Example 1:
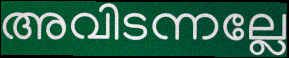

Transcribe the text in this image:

അവിടന്നല്ലേ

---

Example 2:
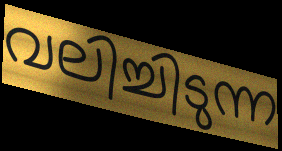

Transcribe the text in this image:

വലിച്ചിടുന്ന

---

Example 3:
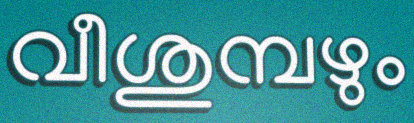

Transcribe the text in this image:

വീശുമ്പഴും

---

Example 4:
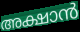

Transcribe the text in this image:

അക്ഷാൻ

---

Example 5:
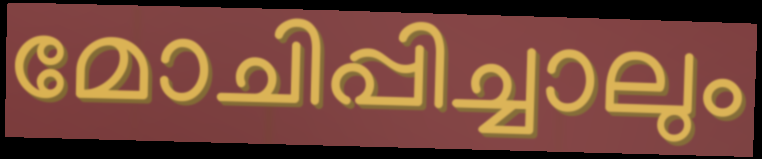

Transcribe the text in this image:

മോചിപ്പിച്ചാലും